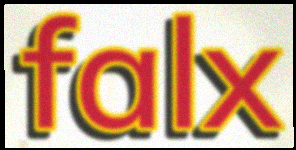
falx